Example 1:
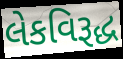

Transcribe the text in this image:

લેકવિરૂદ્ધ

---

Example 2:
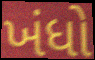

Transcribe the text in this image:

ખંધો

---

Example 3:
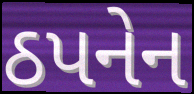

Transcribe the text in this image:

ઠપનેન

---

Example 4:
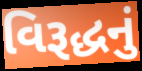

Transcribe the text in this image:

વિરૂદ્ધનું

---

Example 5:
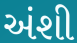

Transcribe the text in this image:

અંશી